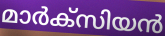
മാർക്സിയൻ